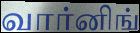
வார்னிங்